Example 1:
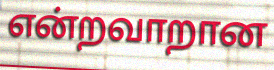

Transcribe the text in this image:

என்றவாறான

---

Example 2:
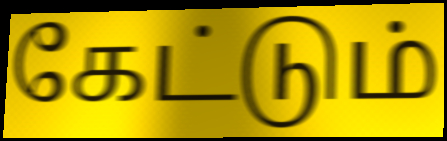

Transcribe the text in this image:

கேட்டும்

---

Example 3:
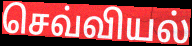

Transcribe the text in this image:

செவ்வியல்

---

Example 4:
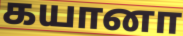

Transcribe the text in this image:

கயானா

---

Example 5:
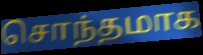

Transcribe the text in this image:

சொந்தமாக